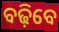
ବଢ଼ିବେ